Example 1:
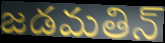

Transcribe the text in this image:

జడమతిన్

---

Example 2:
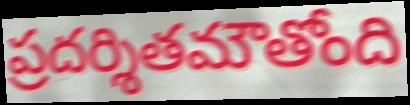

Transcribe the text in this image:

ప్రదర్శితమౌతోంది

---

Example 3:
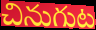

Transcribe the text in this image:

చినుగుట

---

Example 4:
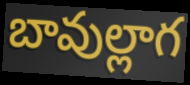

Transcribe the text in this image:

బావుల్లాగ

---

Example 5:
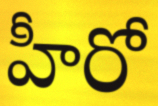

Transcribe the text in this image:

హీరో